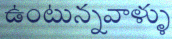
ఉంటున్నవాళ్ళు